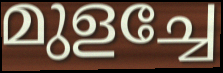
മുളച്ചേ